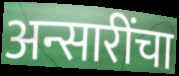
अन्सारींचा